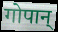
गोपान्